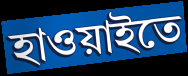
হাওয়াইতে